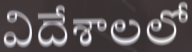
విదేశాలలో